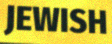
JEWISH